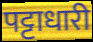
पट्टाधारी